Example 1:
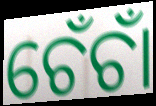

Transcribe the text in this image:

ଚେଁଚାଁ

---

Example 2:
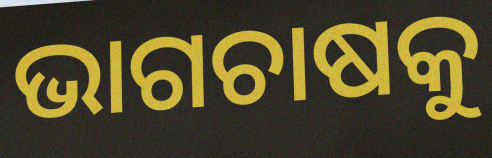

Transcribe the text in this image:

ଭାଗଚାଷକୁ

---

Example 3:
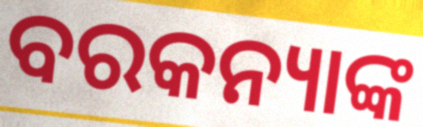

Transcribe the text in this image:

ବରକନ୍ୟାଙ୍କ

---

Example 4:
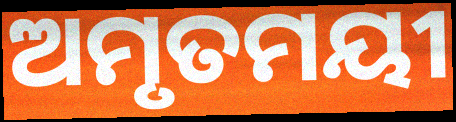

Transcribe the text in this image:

ଅମୃତମୟୀ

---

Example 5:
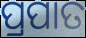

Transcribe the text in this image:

ପ୍ରପାତ